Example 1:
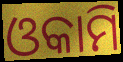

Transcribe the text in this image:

ଓକାମି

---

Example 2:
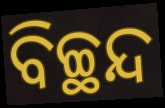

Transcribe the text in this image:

ବିଚ୍ଛନ୍ଦ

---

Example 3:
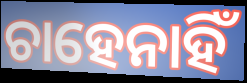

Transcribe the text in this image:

ଚାହେନାହିଁ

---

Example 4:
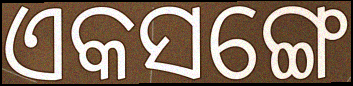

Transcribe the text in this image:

ଏକସଙ୍ଗେ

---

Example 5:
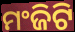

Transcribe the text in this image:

ମଂଜିଟି